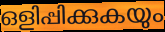
ഒളിപ്പിക്കുകയും